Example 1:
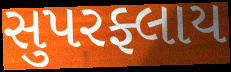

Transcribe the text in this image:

સુપરફ્લાય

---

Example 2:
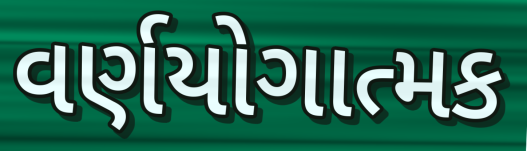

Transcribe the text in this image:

વર્ણયોગાત્મક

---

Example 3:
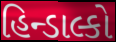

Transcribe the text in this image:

હિન્ડાલ્કો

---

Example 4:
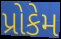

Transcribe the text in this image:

પ્રોકેમ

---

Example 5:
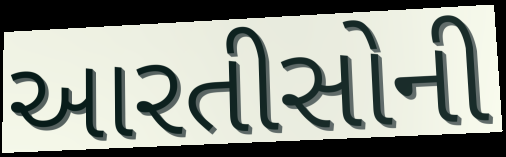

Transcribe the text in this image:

આરતીસોની